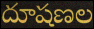
దూషణల